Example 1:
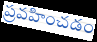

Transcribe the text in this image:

ప్రవహించడం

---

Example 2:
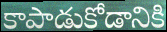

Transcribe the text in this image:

కాపాడుకోడానికి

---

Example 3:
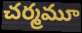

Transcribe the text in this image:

చర్మమూ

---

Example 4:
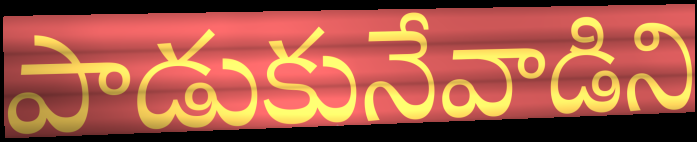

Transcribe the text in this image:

పాడుకునేవాడిని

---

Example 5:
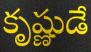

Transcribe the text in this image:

కృష్ణుడే